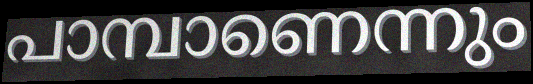
പാമ്പാണെന്നും